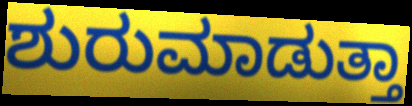
ಶುರುಮಾಡುತ್ತಾ